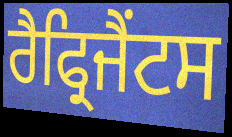
ਰੈਫ੍ਰਿਜੈਂਟਸ